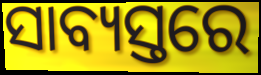
ସାବ୍ୟସ୍ତରେ